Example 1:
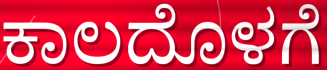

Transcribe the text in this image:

ಕಾಲದೊಳಗೆ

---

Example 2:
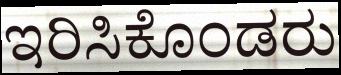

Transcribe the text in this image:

ಇರಿಸಿಕೊಂಡರು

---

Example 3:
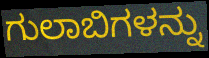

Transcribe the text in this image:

ಗುಲಾಬಿಗಳನ್ನು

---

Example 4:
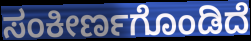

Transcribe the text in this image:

ಸಂಕೀರ್ಣಗೊಂಡಿದೆ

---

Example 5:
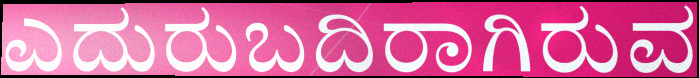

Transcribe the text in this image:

ಎದುರುಬದಿರಾಗಿರುವ